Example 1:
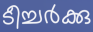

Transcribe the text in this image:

ടീച്ചർക്കു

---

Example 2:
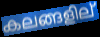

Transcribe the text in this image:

കലങ്ങളില്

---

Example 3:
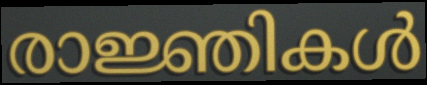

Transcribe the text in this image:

രാജ്ഞികൾ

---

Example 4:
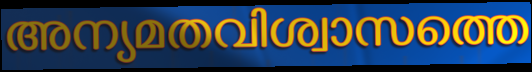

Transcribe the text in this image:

അന്യമതവിശ്വാസത്തെ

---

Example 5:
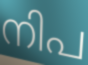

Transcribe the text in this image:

നിപ